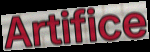
Artifice